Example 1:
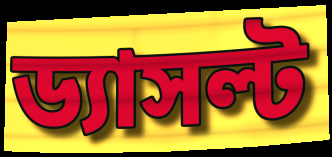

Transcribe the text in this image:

ড্যাসল্ট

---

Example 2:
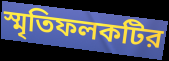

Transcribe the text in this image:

স্মৃতিফলকটির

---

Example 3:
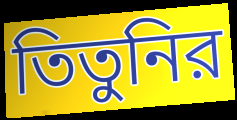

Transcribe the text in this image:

তিতুনির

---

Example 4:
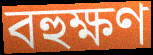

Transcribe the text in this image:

বহুক্ষণ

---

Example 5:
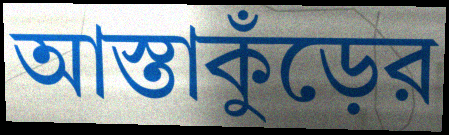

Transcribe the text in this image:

আস্তাকুঁড়ের